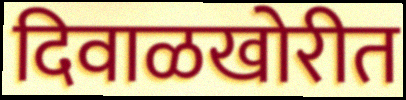
दिवाळखोरीत